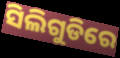
ସିଲିଗୁଡିରେ